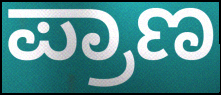
ಪ್ರಾಣ